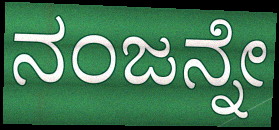
ನಂಜನ್ನೇ